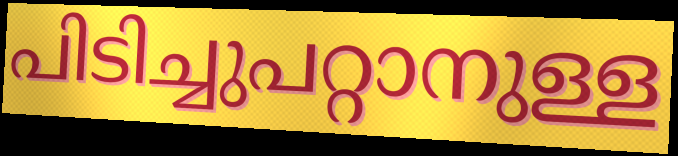
പിടിച്ചുപറ്റാനുള്ള